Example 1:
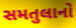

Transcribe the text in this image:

સમતુલાનો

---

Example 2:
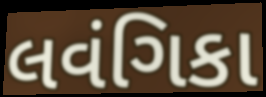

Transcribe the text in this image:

લવંગિકા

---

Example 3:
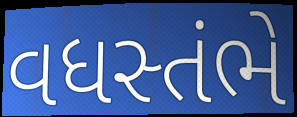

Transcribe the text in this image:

વધસ્તંભે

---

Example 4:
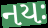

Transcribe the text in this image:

નયઃ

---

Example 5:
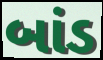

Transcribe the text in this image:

બાંડ